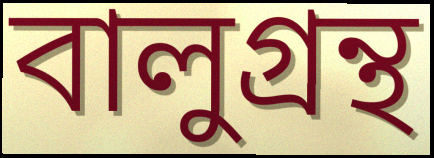
বালুগ্রন্থ